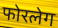
फोरलेग